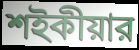
শইকীয়ার